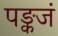
पङ्कजं